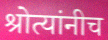
श्रोत्यांनीच